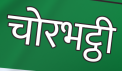
चोरभट्ठी